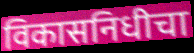
विकासनिधीचा